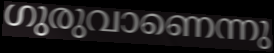
ഗുരുവാണെന്നു